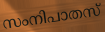
സംനിപാതസ്